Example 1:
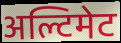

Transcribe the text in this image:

अल्टिमेट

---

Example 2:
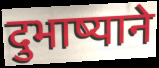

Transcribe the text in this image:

दुभाष्याने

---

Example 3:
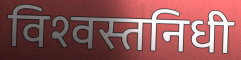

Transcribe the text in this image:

विश्वस्तनिधी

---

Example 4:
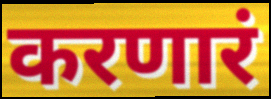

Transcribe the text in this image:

करणारं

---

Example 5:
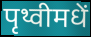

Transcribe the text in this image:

पृथ्वीमधें